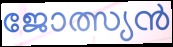
ജോത്സ്യൻ